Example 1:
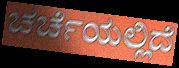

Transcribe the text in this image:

ಚರ್ಚೆಯಲ್ಲಿದೆ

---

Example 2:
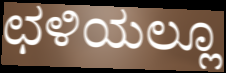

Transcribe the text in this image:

ಛಳಿಯಲ್ಲೂ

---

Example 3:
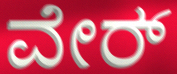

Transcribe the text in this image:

ವೇರ್‍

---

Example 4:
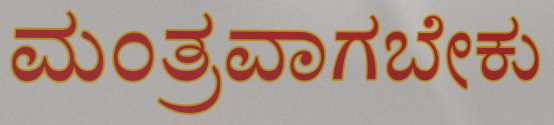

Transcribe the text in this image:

ಮಂತ್ರವಾಗಬೇಕು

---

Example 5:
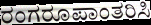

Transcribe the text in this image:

ರಂಗರೂಪಾಂತರಿಸಿ